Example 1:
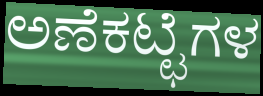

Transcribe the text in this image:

ಅಣೆಕಟ್ಟೆಗಳ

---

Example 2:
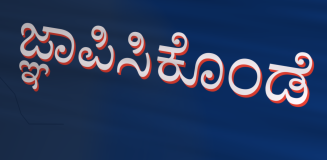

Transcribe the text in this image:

ಜ್ಞಾಪಿಸಿಕೊಂಡೆ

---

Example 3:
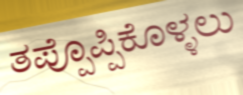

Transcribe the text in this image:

ತಪ್ಪೊಪ್ಪಿಕೊಳ್ಳಲು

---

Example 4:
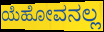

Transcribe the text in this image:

ಯೆಹೋವನಲ್ಲ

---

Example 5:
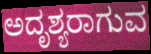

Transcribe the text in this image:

ಅದೃಶ್ಯರಾಗುವ